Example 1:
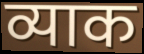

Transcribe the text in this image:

व्याक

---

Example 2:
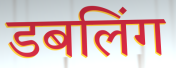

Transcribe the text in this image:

डबलिंग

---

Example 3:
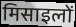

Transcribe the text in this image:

मिसाइलों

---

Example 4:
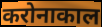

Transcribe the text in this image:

करोनाकाल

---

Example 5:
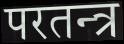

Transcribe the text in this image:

परतन्त्र